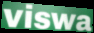
viswa